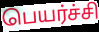
பெயர்ச்சி